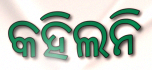
କହିଲନି